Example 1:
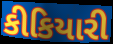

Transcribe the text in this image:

કીકિયારી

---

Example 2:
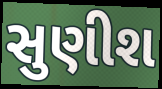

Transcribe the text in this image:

સુણીશ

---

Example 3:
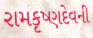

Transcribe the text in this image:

રામકૃષ્ણદેવની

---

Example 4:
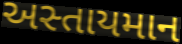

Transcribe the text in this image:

અસ્તાયમાન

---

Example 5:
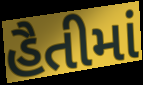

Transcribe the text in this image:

હૈતીમાં